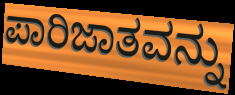
ಪಾರಿಜಾತವನ್ನು